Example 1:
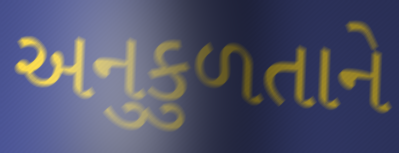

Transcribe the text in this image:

અનુકુળતાને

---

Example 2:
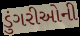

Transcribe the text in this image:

ડુંગરીઓની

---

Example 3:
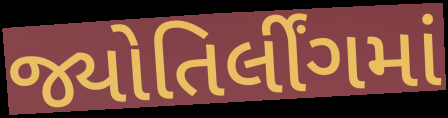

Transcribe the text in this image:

જ્યોતિર્લીંગમાં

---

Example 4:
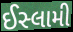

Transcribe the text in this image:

ઈસ્લામી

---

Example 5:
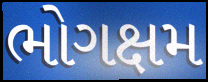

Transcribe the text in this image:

ભોગક્ષમ